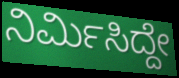
ನಿರ್ಮಿಸಿದ್ದೇ